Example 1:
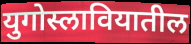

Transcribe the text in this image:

युगोस्लावियातील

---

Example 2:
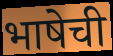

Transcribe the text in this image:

भाषेची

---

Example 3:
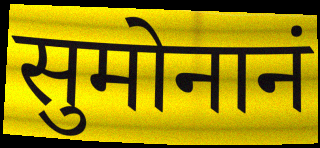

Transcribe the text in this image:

सुमोनानं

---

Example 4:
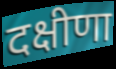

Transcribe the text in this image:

दक्षीणा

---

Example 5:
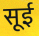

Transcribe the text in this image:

सूई